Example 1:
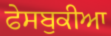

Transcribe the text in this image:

ਫੇਸਬੁਕੀਆ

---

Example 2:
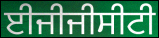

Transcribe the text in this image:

ਈਜੀਜੀਸੀਟੀ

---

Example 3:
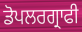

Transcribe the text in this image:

ਡੋਪਲਰਗ੍ਰਾਫੀ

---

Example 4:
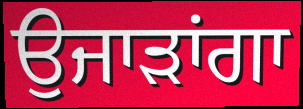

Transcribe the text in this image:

ਉਜਾੜਾਂਗਾ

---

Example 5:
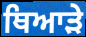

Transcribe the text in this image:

ਥਿਆੜੇ